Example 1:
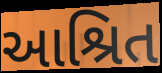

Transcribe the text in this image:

આશ્રિત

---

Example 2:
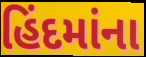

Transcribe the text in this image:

હિંદમાંના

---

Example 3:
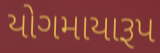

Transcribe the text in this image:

યોગમાયારૂપ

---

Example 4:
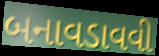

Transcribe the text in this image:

બનાવડાવવી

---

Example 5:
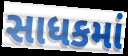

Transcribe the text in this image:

સાધકમાં